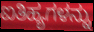
ಐತಿಹ್ಯಗಳನ್ನು